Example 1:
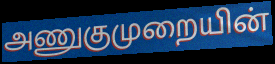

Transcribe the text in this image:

அணுகுமுறையின்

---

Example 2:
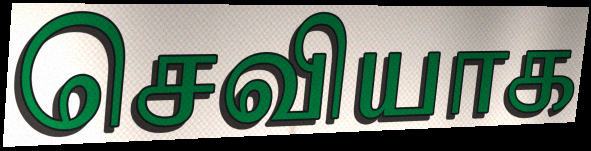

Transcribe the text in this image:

செவியாக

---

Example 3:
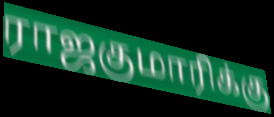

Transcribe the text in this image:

ராஜகுமாரிக்கு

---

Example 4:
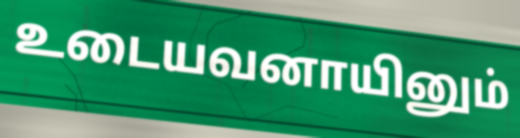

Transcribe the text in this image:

உடையவனாயினும்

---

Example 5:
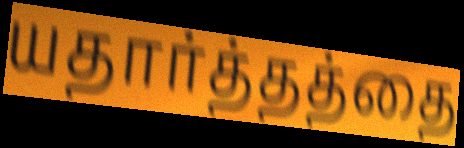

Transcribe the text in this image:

யதார்த்தத்தை